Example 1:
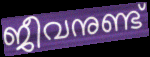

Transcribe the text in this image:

ജീവനുണ്ട്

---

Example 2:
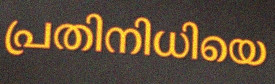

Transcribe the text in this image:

പ്രതിനിധിയെ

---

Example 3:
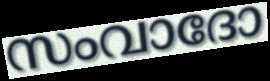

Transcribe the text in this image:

സംവാദോ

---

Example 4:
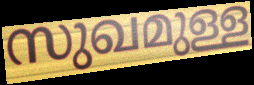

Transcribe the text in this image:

സുഖമുള്ള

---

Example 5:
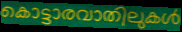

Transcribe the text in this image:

കൊട്ടാരവാതിലുകൾ